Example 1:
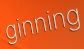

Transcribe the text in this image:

ginning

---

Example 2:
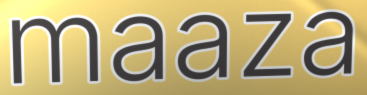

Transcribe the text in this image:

maaza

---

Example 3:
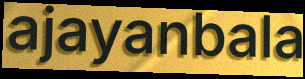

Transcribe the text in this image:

ajayanbala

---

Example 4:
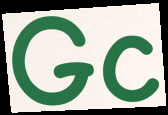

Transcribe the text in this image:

Gc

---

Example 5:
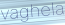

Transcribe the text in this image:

vaghela